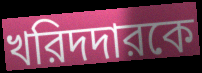
খরিদদারকে